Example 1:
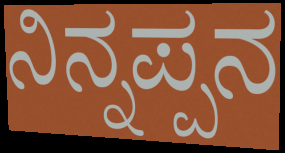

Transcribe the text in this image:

ನಿನ್ನಪ್ಪನ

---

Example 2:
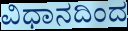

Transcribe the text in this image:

ವಿಧಾನದಿಂದ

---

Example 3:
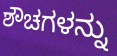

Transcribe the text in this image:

ಶೌಚಗಳನ್ನು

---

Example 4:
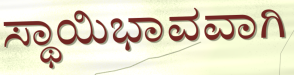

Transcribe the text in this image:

ಸ್ಥಾಯಿಭಾವವಾಗಿ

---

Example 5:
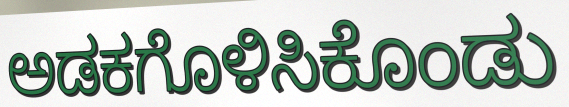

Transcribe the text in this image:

ಅಡಕಗೊಳಿಸಿಕೊಂಡು